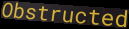
Obstructed